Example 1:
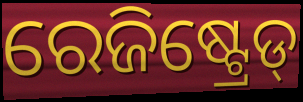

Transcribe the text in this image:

ରେଜିଷ୍ଟ୍ରେଡ୍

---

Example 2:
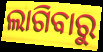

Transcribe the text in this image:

ଲାଗିବାରୁ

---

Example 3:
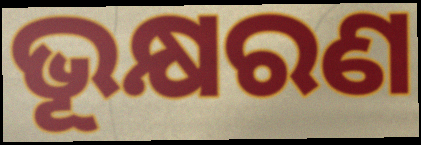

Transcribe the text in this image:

ଭୂକ୍ଷରଣ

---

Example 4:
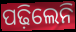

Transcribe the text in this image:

ପଢ଼ିଲେନି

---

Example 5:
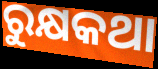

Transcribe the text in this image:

ରୁକ୍ଷକଥା